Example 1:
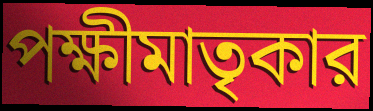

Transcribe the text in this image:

পক্ষীমাতৃকার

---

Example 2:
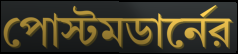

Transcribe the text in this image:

পোস্টমডার্নের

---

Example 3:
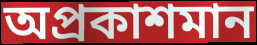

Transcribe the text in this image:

অপ্রকাশমান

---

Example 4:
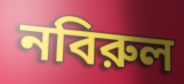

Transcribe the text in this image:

নবিরুল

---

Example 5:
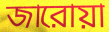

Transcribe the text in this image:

জারোয়া